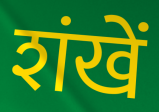
शंखें